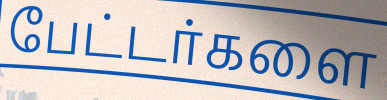
பேட்டர்களை